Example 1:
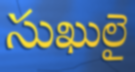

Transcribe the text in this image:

సుఖులై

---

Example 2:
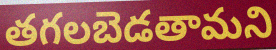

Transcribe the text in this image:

తగలబెడతామని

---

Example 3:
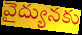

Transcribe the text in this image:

వైద్యునకు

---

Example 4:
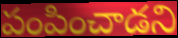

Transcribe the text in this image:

పంపించాడని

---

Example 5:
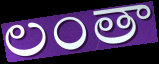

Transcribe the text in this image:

లంతా